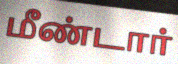
மீண்டார்